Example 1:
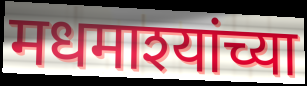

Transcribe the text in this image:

मधमाश्‍यांच्या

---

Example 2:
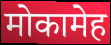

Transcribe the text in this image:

मोकामेह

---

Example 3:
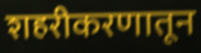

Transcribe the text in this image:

शहरीकरणातून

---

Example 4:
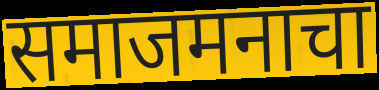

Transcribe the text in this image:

समाजमनाचा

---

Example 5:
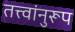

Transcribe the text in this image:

तत्त्वांनुरूप